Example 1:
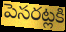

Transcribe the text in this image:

పెసరట్లకి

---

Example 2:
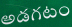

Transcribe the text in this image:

అడగటం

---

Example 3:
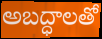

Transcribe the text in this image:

అబద్ధాలతో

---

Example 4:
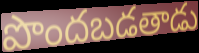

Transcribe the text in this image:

పొందబడతాడు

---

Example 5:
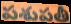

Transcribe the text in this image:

పశుపతీ